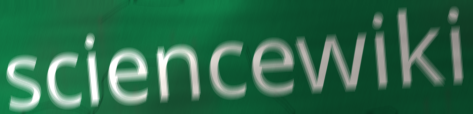
sciencewiki